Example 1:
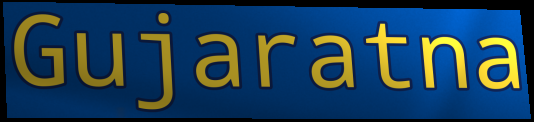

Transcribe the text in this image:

Gujaratna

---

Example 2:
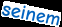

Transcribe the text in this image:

seinem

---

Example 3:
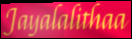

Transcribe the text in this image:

Jayalalithaa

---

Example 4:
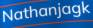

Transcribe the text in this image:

Nathanjagk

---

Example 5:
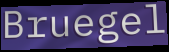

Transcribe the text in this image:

Bruegel